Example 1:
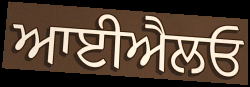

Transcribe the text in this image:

ਆਈਐਲਓ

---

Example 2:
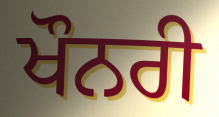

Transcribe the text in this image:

ਖੌਨਰੀ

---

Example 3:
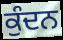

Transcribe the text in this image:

ਕੁੰਦਨ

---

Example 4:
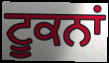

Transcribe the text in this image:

ਟੂਕਨਾਂ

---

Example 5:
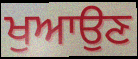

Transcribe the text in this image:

ਖੁਆਉਣ